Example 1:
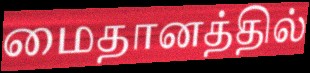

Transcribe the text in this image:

மைதானத்தில்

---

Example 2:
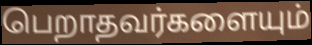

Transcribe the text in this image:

பெறாதவர்களையும்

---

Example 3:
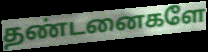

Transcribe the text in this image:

தண்டனைகளே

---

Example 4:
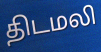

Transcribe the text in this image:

திடமலி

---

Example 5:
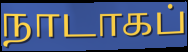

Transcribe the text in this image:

நாடாகப்